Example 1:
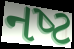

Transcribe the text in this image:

નષ્‍ટ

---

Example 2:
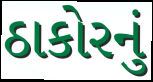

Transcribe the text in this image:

ઠાકોરનું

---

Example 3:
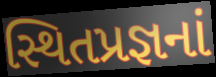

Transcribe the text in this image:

સ્થિતપ્રજ્ઞનાં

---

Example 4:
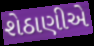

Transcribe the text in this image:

શેઠાણીએ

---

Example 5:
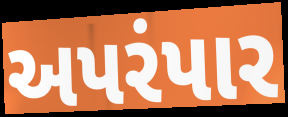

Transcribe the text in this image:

અપરંપાર